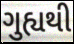
ગુહ્યથી